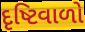
દૃષ્ટિવાળો